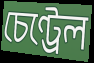
চেণ্ট্ৰেল